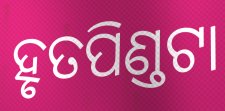
ହୃତପିଣ୍ଡଟା